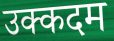
उक्कदम